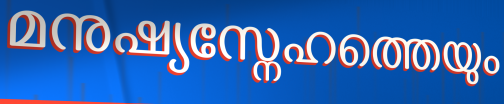
മനുഷ്യസ്നേഹത്തെയും